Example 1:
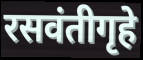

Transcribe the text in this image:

रसवंतीगृहे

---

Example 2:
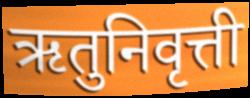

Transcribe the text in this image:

ऋतुनिवृत्ती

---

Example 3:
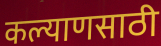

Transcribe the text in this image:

कल्याणसाठी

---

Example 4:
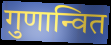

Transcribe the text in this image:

गुणान्वित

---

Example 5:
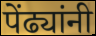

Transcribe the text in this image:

पेंढ्यांनी